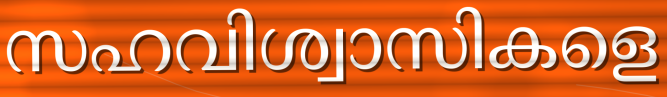
സഹവിശ്വാസികളെ